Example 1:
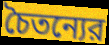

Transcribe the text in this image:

চৈতন্যের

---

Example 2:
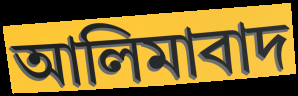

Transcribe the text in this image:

আলিমাবাদ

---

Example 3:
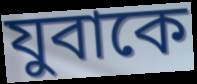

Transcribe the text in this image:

যুবাকে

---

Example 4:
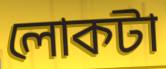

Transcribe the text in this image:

লোকটা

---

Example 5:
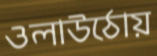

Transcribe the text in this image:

ওলাউঠোয়